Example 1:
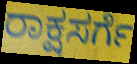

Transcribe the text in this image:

ರಾಕ್ಷಸರ್ಗೆ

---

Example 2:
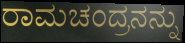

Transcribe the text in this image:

ರಾಮಚಂದ್ರನನ್ನು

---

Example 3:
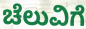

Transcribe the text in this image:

ಚೆಲುವಿಗೆ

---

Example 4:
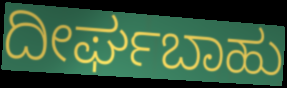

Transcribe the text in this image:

ದೀರ್ಘಬಾಹು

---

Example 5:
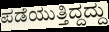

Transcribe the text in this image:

ಪಡೆಯುತ್ತಿದ್ದದ್ದು